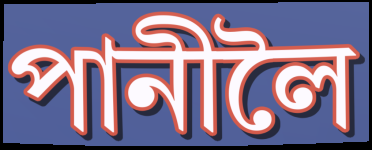
পানীলৈ